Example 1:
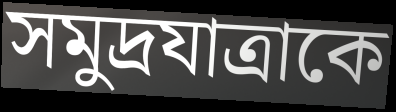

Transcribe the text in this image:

সমুদ্রযাত্রাকে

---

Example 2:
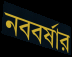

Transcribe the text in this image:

নববর্ষার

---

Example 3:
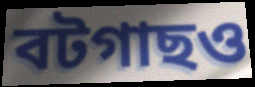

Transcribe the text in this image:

বটগাছও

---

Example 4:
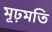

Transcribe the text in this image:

মূঢ়মতি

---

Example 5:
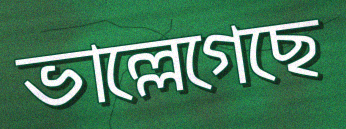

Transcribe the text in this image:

ভাল্লেগেছে